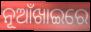
ନୂଆଁଖାଇରେ